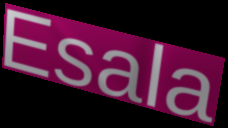
Esala